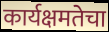
कार्यक्षमतेचा